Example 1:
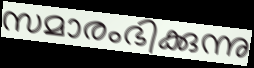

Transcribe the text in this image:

സമാരംഭിക്കുന്നു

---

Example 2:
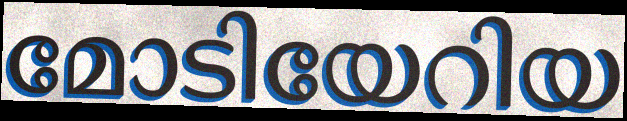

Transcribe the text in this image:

മോടിയേറിയ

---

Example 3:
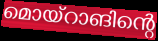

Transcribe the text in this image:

മൊയ്റാങിന്റെ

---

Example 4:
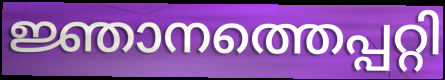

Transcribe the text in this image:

ജ്ഞാനത്തെപ്പറ്റി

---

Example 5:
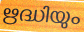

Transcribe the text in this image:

ഋദ്ധിയും